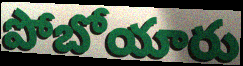
పోబోయారు